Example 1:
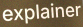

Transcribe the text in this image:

explainer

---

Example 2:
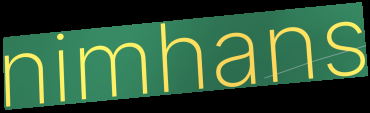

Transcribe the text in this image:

nimhans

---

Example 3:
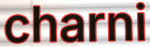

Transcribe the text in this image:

charni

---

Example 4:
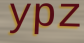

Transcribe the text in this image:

ypz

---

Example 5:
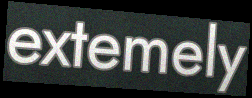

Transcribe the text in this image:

extemely